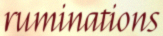
ruminations